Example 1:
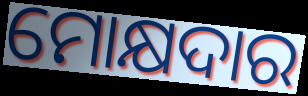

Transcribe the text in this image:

ମୋକ୍ଷଦାର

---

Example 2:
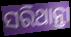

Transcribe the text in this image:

ସରିଥାନ୍ତା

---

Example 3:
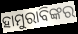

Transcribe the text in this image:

ହାମୁରାବିଙ୍କର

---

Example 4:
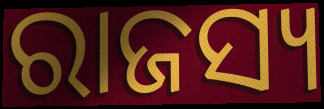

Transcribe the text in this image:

ରାଜସ୍ୟ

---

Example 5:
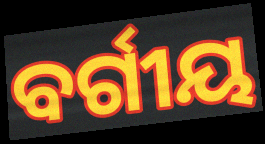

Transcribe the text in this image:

ବର୍ଗୀୟ